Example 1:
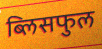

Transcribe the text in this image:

ब्लिसफुल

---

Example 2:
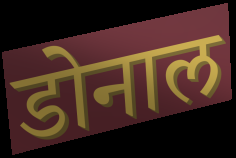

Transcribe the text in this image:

डोनाल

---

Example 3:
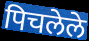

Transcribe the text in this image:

पिचलेले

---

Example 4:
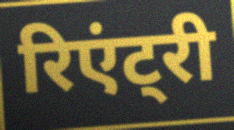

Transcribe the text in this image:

रिएंट्री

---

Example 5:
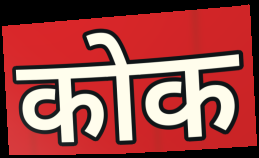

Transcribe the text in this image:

कोक